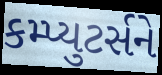
કમ્પ્યુટર્સને